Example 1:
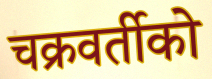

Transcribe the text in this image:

चक्रवर्तीको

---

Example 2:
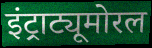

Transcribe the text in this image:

इंट्राट्यूमोरल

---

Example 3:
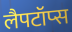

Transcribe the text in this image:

लैपटॉप्‍स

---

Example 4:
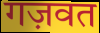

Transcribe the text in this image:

गज़वत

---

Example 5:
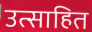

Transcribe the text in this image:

उत्साहित